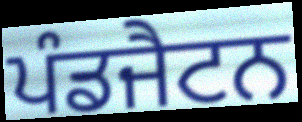
ਪੰਡਜੈਟਨ